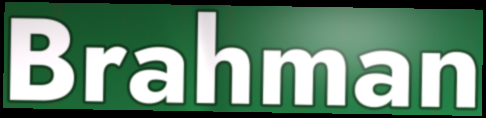
Brahman